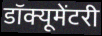
डॉक्यूमेंटरी